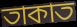
তাকাত